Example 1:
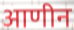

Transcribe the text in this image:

आणीन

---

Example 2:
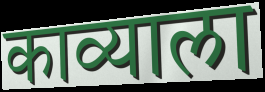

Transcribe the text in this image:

काव्याला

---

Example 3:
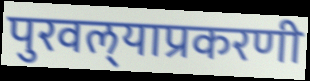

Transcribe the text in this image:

पुरवल्याप्रकरणी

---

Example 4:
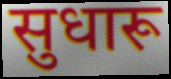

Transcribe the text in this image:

सुधारू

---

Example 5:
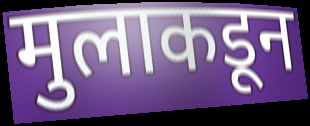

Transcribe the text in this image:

मुलाकडून